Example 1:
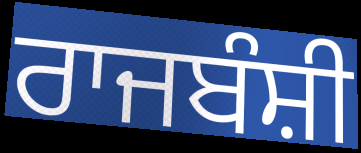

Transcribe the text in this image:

ਰਾਜਬੰਸ਼ੀ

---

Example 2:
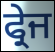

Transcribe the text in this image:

ਫ੍ਰੇਜ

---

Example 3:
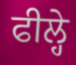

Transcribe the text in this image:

ਫੀਲ੍ਹੇ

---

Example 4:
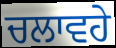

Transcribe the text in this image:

ਚਲਾਵਹੇ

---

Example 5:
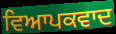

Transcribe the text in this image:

ਵਿਆਪਕਵਾਦ